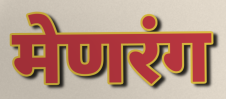
मेणरंग